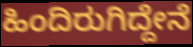
ಹಿಂದಿರುಗಿದ್ದೇನೆ